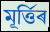
মূৰ্ত্তিৰ